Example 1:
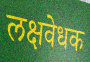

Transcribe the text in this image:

लक्षवेधक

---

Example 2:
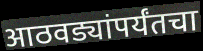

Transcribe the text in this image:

आठवड्यांपर्यंतचा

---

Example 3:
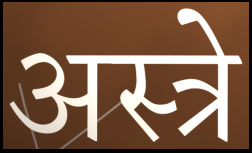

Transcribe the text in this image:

अस्त्रे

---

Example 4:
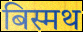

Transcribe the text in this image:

बिस्मथ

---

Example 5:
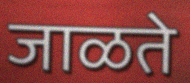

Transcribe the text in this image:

जाळते